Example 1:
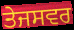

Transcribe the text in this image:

ਤੇਜਸਵਰ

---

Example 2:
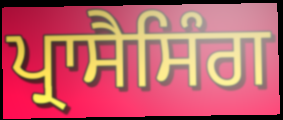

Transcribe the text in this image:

ਪ੍ਰਾਸੈਸਿੰਗ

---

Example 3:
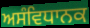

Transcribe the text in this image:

ਅਸੰਵਿਧਾਨਕ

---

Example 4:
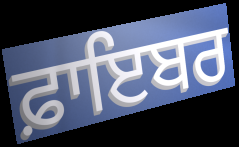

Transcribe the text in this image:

ਫ਼ਾਇਬਰ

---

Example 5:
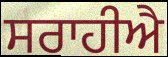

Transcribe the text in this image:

ਸਰਾਹੀਐ